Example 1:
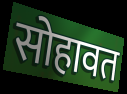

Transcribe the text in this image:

सोहावत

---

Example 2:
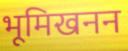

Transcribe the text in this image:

भूमिखनन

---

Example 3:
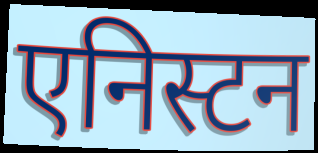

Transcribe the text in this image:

एनिस्टन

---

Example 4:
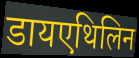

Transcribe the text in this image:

डायएथिलिन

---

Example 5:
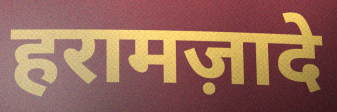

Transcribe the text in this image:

हरामज़ादे